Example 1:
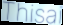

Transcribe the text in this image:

Thisai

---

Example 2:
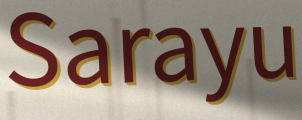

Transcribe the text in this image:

Sarayu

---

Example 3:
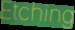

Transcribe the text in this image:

Etching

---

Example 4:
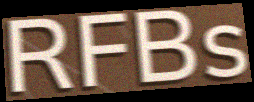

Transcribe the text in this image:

RFBs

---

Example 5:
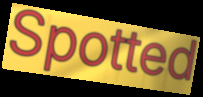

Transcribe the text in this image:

Spotted